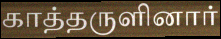
காத்தருளினார்